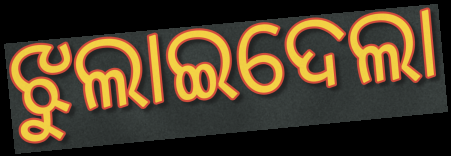
ଝୁଲାଇଦେଲା